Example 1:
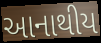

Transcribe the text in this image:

આનાથીય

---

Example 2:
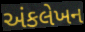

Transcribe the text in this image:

અંકલેખન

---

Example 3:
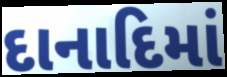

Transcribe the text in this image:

દાનાદિમાં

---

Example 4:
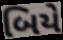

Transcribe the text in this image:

બિયે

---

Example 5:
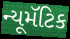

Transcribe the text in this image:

ન્યૂમૅટિક